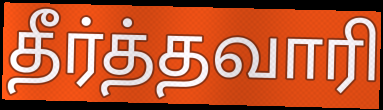
தீர்த்தவாரி